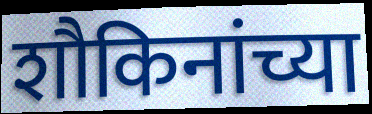
शौकिनांच्या